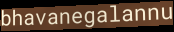
bhavanegalannu